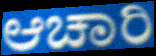
ಆಚಾರಿ